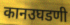
कानउघडणी